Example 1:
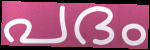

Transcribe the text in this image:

പദം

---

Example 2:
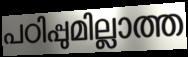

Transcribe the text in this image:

പഠിപ്പുമില്ലാത്ത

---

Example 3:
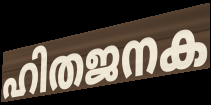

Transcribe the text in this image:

ഹിതജനക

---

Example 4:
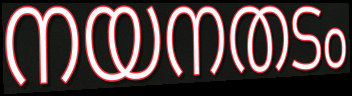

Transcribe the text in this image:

നയനതടം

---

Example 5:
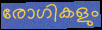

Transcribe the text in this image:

രോഗികളും